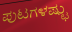
ಪುಟಗಳಷ್ಟು